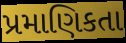
પ્રમાણિકતા